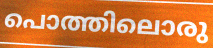
പൊത്തിലൊരു